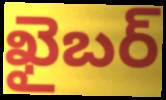
ఖైబర్